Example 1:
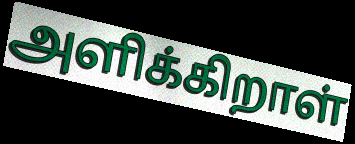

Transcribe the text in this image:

அளிக்கிறாள்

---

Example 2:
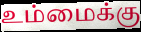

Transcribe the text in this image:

உம்மைக்கு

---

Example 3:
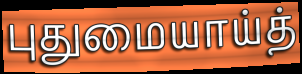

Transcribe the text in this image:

புதுமையாய்த்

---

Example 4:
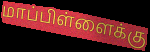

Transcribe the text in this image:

மாப்பிள்ளைக்கு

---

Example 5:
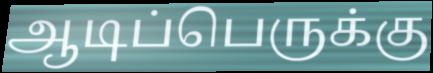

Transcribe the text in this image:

ஆடிப்பெருக்கு